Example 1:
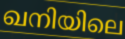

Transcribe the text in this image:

ഖനിയിലെ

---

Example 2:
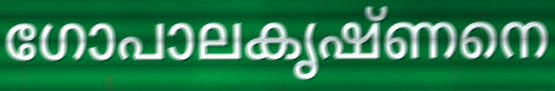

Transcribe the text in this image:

ഗോപാലകൃഷ്ണനെ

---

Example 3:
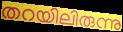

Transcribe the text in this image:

തറയിലിരുന്നു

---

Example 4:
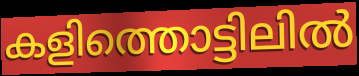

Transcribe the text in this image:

കളിത്തൊട്ടിലിൽ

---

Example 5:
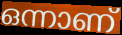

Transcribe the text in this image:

ഒന്നാണ്